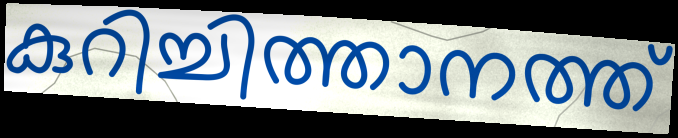
കുറിച്ചിത്താനത്ത്